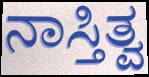
ನಾಸ್ತಿತ್ವ